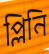
প্লিনি